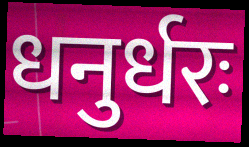
धनुर्धरः